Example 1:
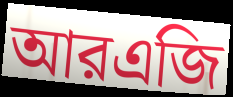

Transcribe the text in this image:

আরএজি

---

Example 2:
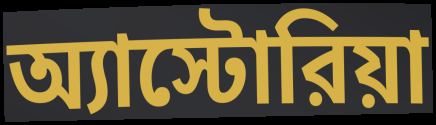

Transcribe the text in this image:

অ্যাস্টোরিয়া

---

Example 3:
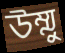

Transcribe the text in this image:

উম্মু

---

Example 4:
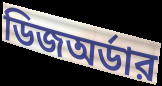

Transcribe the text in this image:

ডিজঅর্ডার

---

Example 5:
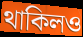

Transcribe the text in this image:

থাকিলও